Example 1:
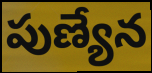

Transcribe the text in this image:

పుణ్యేన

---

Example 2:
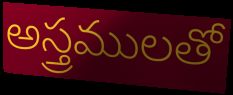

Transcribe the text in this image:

అస్త్రములతో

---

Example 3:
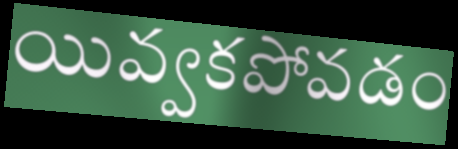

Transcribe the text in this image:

యివ్వకపోవడం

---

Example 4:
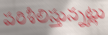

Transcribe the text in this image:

పరిశీలిస్తున్నట్లు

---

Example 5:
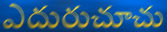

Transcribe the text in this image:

ఎదురుచూచు